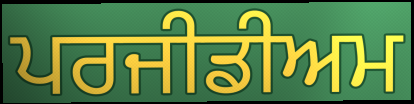
ਪਰਜੀਡੀਅਮ